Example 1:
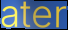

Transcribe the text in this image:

ater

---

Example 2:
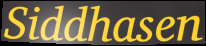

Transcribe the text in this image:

Siddhasen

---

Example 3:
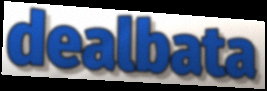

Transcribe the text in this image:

dealbata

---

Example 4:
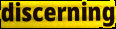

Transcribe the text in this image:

discerning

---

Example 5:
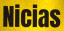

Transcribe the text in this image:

Nicias